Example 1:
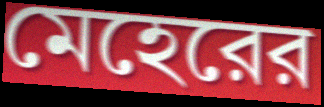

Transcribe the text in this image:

মেহেরের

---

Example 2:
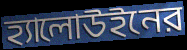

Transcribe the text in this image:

হ্যালোউইনের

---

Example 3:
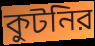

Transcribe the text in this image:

কুটনির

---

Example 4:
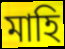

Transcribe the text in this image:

মাহি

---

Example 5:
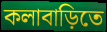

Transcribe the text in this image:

কলাবাড়িতে